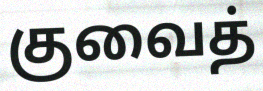
குவைத்